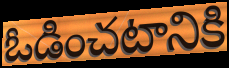
ఓడించటానికి